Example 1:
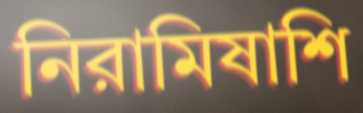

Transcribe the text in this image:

নিরামিষাশি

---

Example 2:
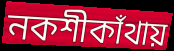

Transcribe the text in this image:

নকশীকাঁথায়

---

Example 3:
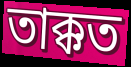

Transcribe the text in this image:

তাক্কত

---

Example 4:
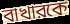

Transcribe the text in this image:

বাখারকে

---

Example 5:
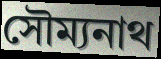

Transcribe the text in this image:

সৌম্যনাথ